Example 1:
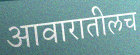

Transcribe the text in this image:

आवारातीलच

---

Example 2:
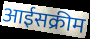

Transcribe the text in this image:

आईसक्रीम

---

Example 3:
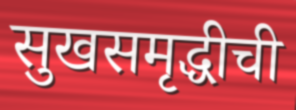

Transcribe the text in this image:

सुखसमृद्धीची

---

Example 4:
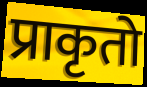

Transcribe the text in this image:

प्राकृतो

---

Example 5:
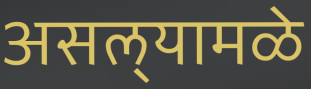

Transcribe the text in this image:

असल्यामळे